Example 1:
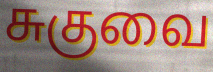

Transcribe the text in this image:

சுகுவை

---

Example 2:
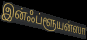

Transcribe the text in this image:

இன்ஃப்ளூயன்ஸா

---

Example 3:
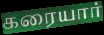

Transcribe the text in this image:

கரையார்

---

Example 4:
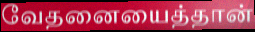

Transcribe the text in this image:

வேதனையைத்தான்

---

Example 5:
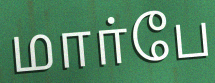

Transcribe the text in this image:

மார்பே